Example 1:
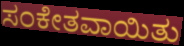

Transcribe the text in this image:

ಸಂಕೇತವಾಯಿತು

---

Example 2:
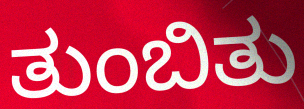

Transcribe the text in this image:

ತುಂಬಿತು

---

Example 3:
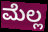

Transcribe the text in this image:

ಮೆಲ್ಲ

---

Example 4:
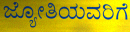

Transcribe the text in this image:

ಜ್ಯೋತಿಯವರಿಗೆ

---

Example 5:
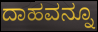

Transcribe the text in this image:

ದಾಹವನ್ನೂ